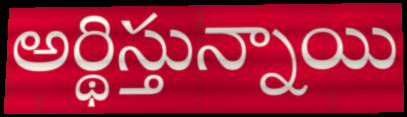
అర్థిస్తున్నాయి